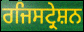
ਰਜਿਸਟ੍ਰੇਸ਼ਨ